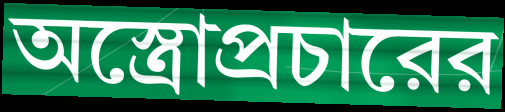
অস্ত্রোপ্রচারের